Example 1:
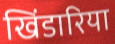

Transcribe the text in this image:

खिंडारिया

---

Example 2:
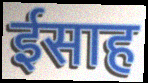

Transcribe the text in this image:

ईसाह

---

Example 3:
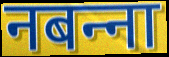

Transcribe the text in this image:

नबन्ना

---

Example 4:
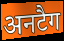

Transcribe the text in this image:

अनटैग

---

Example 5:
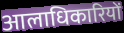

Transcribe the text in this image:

आलाधिकारियों